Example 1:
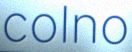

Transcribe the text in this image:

colno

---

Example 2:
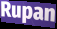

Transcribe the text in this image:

Rupan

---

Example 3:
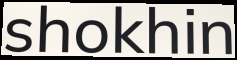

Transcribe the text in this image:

shokhin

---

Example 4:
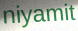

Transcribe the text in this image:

niyamit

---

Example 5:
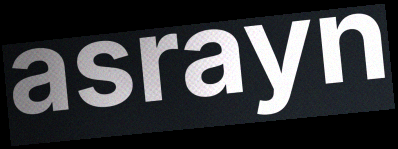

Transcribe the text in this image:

asrayn